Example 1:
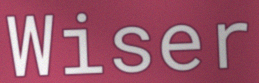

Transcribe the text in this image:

Wiser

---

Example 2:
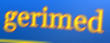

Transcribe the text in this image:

gerimed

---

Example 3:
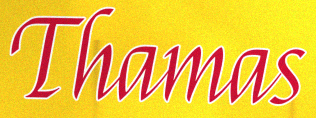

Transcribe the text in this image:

Thamas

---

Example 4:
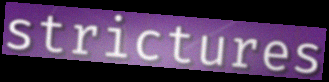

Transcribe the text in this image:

strictures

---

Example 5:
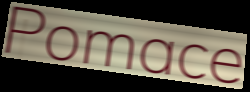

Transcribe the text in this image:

Pomace